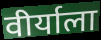
वीर्याला